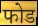
फोड